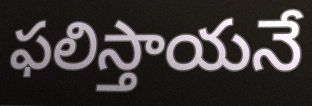
ఫలిస్తాయనే